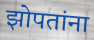
झोपतांना